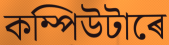
কম্পিউটাৰে